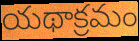
యథాక్రమం